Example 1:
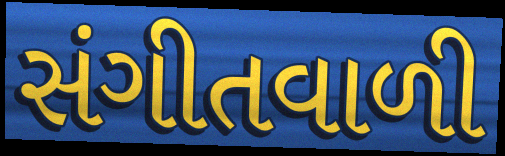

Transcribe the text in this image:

સંગીતવાળી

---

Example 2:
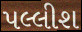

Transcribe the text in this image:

પલ્લીશ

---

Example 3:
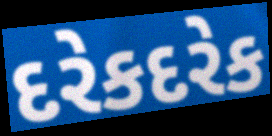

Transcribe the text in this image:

દરેકદરેક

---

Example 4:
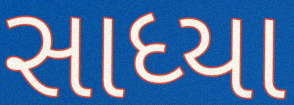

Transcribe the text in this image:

સાધ્યા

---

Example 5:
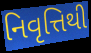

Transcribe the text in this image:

નિવૃત્તિથી